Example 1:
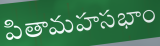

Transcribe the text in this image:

పితామహసభాం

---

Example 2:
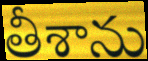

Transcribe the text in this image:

తీశాను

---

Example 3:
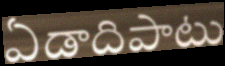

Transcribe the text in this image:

ఏడాదిపాటు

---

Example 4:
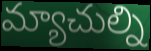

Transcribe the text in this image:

మ్యాచుల్ని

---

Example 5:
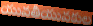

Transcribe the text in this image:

యువతీయువకుల